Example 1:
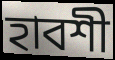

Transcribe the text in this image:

হাবশী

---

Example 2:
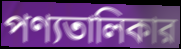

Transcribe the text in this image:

পণ্যতালিকার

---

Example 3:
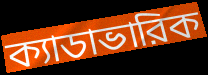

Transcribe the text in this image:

ক্যাডাভারিক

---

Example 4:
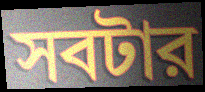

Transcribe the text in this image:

সবটার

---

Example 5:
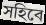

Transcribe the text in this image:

সহিবে